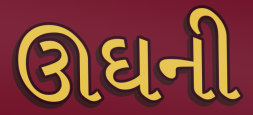
ઊઘની